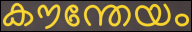
കൗന്തേയം